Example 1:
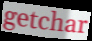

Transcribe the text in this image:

getchar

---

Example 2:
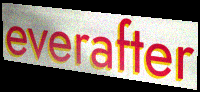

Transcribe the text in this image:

everafter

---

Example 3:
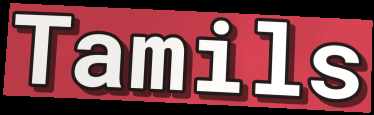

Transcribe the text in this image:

Tamils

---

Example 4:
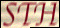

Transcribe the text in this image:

STH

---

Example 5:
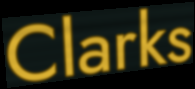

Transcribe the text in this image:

Clarks